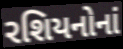
રશિયનોનાં